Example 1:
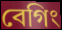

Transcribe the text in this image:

বেগিং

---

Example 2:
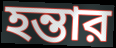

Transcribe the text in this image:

হন্তার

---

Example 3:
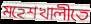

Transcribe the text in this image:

মহেশখালীতে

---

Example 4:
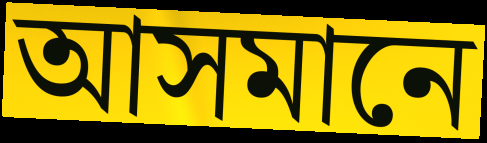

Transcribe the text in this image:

আসমানে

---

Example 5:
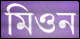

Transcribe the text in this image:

মিওন